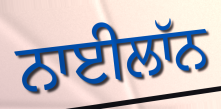
ਨਾਈਲਾੱਨ